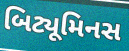
બિટ્યૂમિનસ